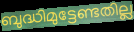
ബുദ്ധിമുട്ടേണ്ടതില്ല